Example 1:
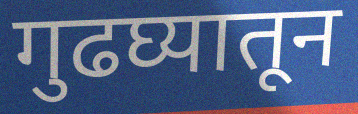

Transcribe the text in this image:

गुढघ्यातून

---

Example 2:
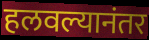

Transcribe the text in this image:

हलवल्यानंतर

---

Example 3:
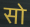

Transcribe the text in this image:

सो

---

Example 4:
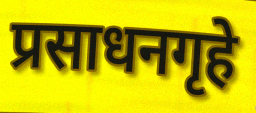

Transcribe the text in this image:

प्रसाधनगृहे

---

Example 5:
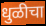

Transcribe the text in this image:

धुळीचा